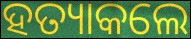
ହତ୍ୟାକଲେ